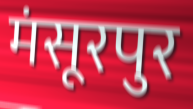
मंसूरपुर